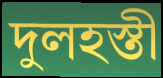
দুলহস্তী